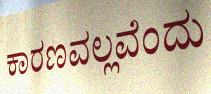
ಕಾರಣವಲ್ಲವೆಂದು